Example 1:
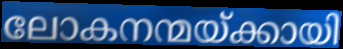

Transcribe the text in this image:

ലോകനന്മയ്ക്കായി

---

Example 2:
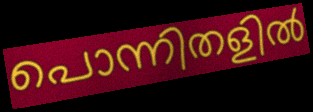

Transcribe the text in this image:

പൊന്നിതളിൽ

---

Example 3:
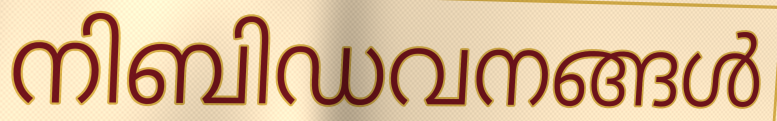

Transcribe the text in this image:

നിബിഡവനങ്ങൾ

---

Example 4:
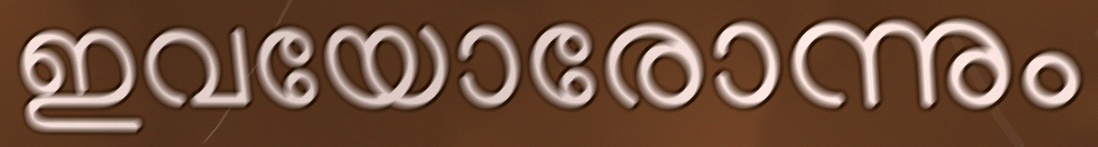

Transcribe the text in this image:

ഇവയോരോന്നും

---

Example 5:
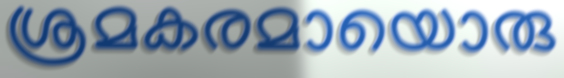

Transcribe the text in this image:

ശ്രമകരമായൊരു